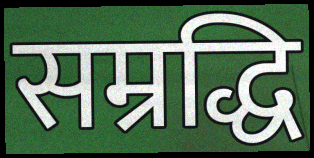
सम्रद्धि